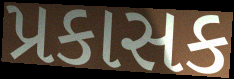
પ્રકાસક